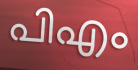
പിഎം